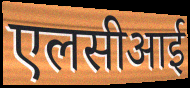
एलसीआई